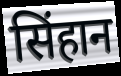
सिंहान